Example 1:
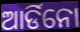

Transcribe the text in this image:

ଆର୍ଡିନୋ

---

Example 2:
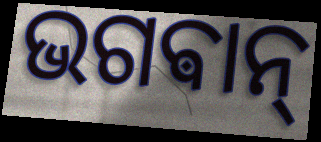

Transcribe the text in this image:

ଭଗଵାନ୍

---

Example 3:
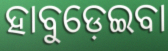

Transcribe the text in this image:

ହାବୁଡ଼େଇବା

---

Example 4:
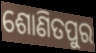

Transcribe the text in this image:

ଶୋଣିତପୁର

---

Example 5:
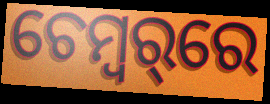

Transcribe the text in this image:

ଚେମ୍ବର୍‌ରେ